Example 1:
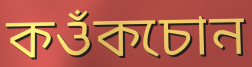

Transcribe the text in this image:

কওঁকচোন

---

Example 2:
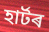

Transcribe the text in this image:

হাৰ্টৰ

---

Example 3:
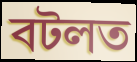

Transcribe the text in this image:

বটলত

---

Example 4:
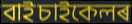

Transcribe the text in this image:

বাইচাইকেলৰ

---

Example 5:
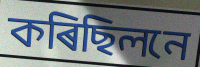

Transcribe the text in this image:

কৰিছিলনে